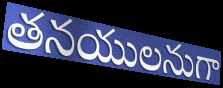
తనయులనుగా